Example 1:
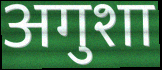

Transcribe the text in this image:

अगुशा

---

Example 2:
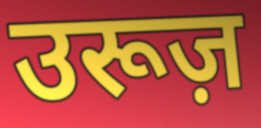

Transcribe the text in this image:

उरूज़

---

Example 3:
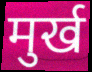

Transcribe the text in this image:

मुर्ख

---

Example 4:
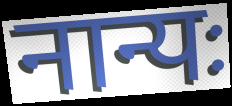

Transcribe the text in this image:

नान्यः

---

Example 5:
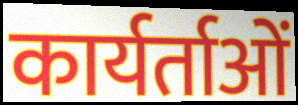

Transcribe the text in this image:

कार्यर्ताओं